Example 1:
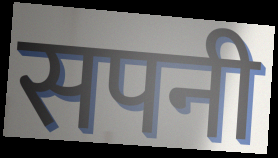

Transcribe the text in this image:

सपनी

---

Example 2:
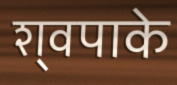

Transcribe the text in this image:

श्वपाके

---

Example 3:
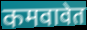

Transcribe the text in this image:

कमवावेत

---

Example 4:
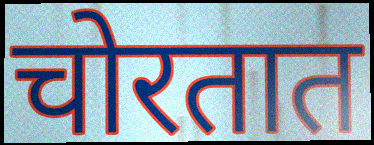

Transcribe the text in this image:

चोरतात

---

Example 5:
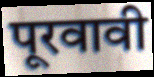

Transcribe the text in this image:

पूरवावी